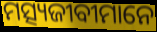
ମତ୍ସ୍ୟଜୀବୀମାନେ